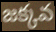
జక్కవ